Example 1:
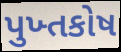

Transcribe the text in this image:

પુખ્તકોષ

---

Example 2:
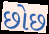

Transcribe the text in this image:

છોછ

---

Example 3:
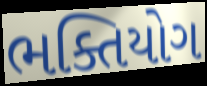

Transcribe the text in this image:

ભક્તિયોગ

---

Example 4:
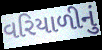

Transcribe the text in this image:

વરિયાળીનું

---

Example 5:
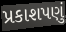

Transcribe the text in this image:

પ્રકાશપણું